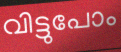
വിട്ടുപോം